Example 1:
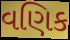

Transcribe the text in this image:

વણિક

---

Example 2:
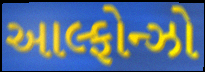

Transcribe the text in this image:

આલ્ફોન્ઝો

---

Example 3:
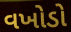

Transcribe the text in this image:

વખોડો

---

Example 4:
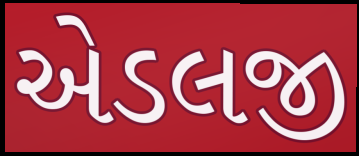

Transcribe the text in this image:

એડલજી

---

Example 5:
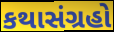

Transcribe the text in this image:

કથાસંગ્રહો